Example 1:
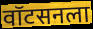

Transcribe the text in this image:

वॉटसनला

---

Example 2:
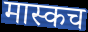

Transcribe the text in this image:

मास्कच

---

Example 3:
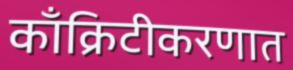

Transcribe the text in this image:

काँक्रिटीकरणात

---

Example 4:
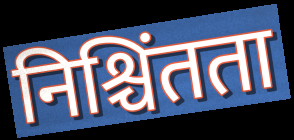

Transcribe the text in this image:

निश्चिंतता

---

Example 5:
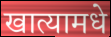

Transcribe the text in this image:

खात्यामधे